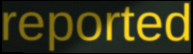
reported